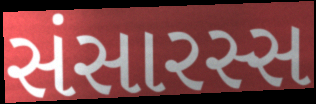
સંસારસ્સ